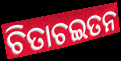
ଚିତାଚଇତନ